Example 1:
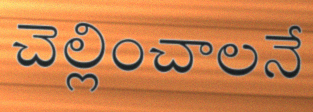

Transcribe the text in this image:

చెల్లించాలనే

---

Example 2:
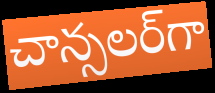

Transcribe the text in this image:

చాన్సలర్‌గా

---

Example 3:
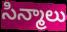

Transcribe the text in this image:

సిన్మాలు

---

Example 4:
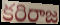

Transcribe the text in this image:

కరిరాజ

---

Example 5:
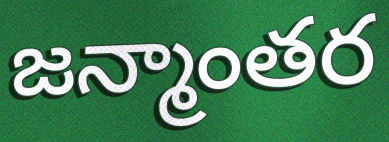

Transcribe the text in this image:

జన్మాంతర